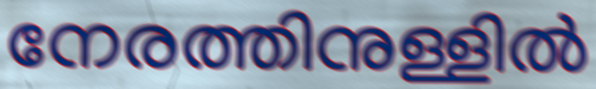
നേരത്തിനുള്ളിൽ